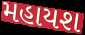
મહાયશ